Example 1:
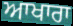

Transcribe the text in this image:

ਆਖਾਰਾ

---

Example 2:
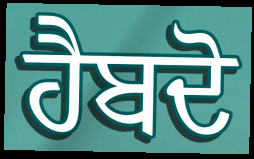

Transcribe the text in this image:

ਹੈਬਦੋ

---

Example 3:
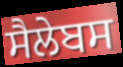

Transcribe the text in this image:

ਸੈਲੇਬਸ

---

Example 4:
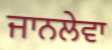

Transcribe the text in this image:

ਜਾਨਲੇਵਾ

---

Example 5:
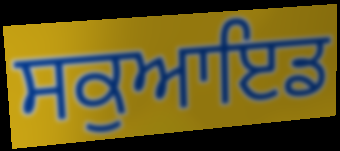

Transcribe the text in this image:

ਸਕੁਆਇਡ